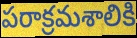
పరాక్రమశాలికి